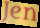
Jen